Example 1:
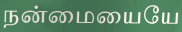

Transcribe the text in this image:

நன்மையையே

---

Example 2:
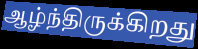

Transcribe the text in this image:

ஆழ்ந்திருக்கிறது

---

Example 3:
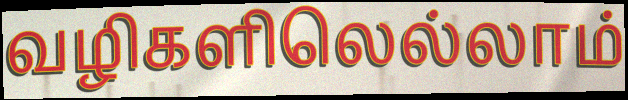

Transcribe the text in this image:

வழிகளிலெல்லாம்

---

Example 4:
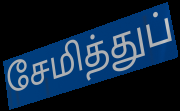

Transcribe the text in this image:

சேமித்துப்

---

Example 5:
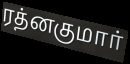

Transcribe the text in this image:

ரத்னகுமார்